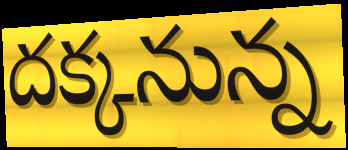
దక్కనున్న